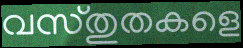
വസ്തുതകളെ